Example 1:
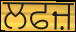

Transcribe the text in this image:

ਲਫਜ਼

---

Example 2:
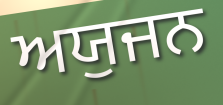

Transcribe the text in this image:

ਅਯੁਜਨ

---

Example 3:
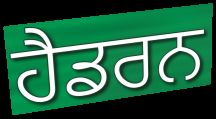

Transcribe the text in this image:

ਹੈਡਰਨ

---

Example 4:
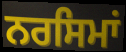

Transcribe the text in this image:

ਨਰਸਿਮਾਂ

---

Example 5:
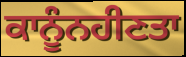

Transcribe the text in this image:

ਕਾਨੂੰਨਹੀਣਤਾ